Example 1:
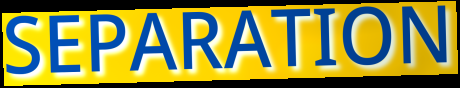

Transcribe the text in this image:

SEPARATION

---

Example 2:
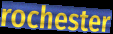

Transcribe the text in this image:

rochester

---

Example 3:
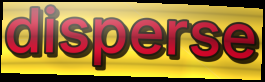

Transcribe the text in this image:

disperse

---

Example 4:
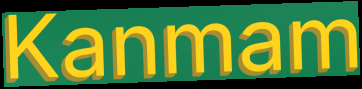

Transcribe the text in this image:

Kanmam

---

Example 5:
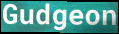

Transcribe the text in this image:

Gudgeon